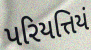
પરિયત્તિયં